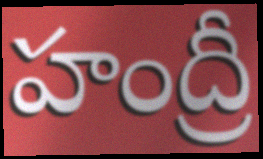
హంద్రీ